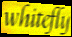
whitefly